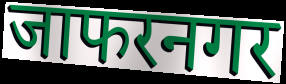
जाफरनगर